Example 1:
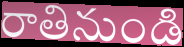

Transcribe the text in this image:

రాతినుండి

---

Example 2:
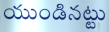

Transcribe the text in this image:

యుండినట్టు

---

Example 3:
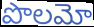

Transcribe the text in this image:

పొలమో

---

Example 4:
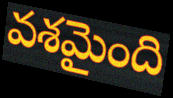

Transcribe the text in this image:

వశమైంది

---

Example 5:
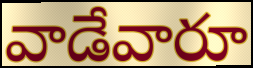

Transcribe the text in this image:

వాడేవారూ